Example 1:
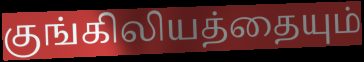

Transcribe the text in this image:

குங்கிலியத்தையும்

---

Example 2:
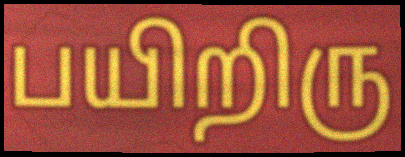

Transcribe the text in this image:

பயிறிரு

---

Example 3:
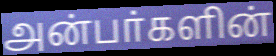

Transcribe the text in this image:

அன்பர்களின்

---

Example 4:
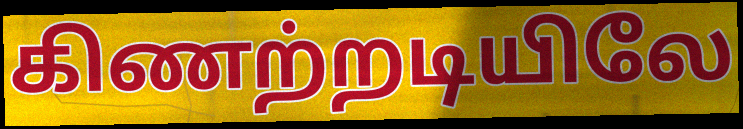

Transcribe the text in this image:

கிணற்றடியிலே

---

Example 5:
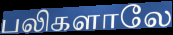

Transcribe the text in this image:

பலிகளாலே